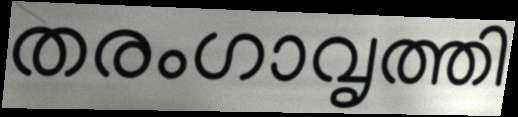
തരംഗാവൃത്തി